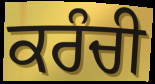
ਕਰੰਚੀ